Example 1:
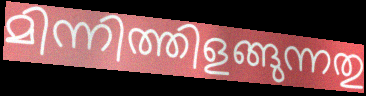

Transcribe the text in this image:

മിന്നിത്തിളങ്ങുന്നതു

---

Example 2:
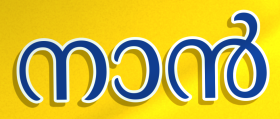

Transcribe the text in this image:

നാൻ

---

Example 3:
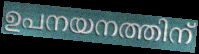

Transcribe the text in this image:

ഉപനയനത്തിന്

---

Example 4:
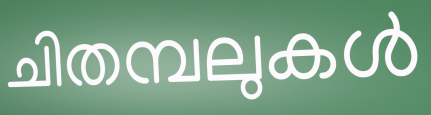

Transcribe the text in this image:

ചിതമ്പലുകൾ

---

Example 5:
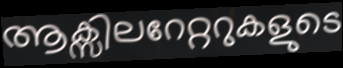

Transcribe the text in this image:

ആക്സിലറേറ്ററുകളുടെ